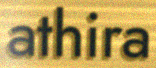
athira